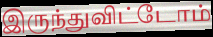
இருந்துவிட்டோம்